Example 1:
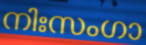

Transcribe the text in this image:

നിഃസംഗാ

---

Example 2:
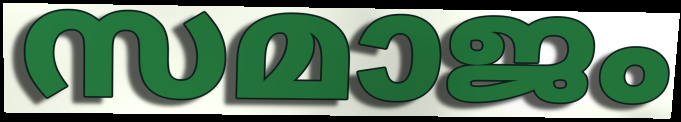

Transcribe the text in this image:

സമാജം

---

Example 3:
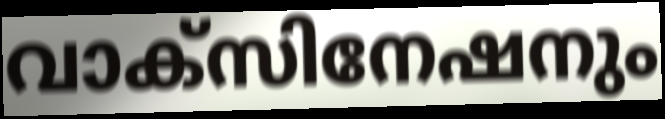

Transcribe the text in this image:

വാക്സിനേഷനും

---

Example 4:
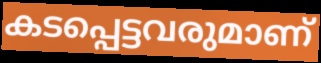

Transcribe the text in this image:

കടപ്പെട്ടവരുമാണ്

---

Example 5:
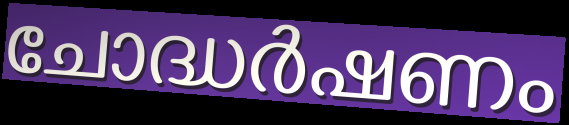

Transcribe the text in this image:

ചോദ്ധർഷണം